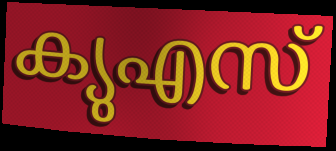
ക്യുഎസ്